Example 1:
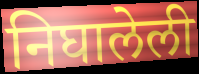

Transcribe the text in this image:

निघालेली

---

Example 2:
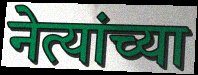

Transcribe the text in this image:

नेत्यांच्या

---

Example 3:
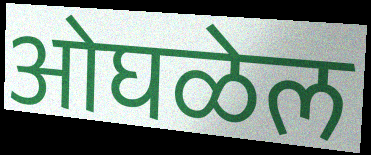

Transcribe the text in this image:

ओघळेल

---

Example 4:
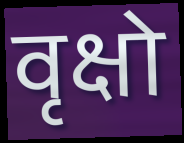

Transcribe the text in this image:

वृक्षो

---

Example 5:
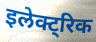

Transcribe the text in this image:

इलेक्ट्रिक